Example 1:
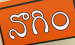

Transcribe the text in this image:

నొగిం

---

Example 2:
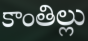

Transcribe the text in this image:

కాంతిల్లు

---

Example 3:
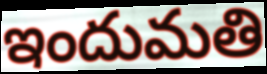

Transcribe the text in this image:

ఇందుమతి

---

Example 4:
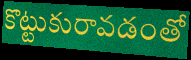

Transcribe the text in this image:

కొట్టుకురావడంతో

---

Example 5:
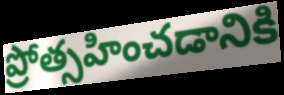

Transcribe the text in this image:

ప్రోత్సహించడానికి